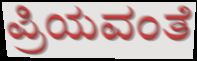
ಪ್ರಿಯವಂತೆ